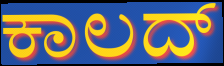
ಕಾಲದ್